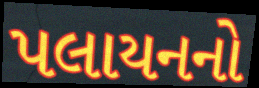
પલાયનનો